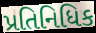
પ્રતિનિધિક